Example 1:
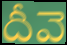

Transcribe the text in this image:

దీవె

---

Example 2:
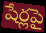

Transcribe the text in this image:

షేర్లపై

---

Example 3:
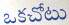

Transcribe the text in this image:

ఒకచోటు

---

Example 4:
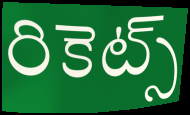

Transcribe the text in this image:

రికెట్స్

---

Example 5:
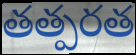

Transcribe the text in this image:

తత్పరత